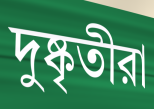
দুষ্কৃতীরা